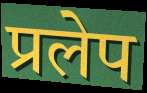
प्रलेप